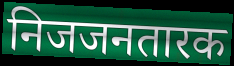
निजजनतारक